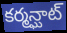
కర్మన్ఘాట్